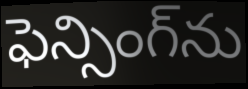
ఫెన్సింగ్‌ను